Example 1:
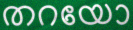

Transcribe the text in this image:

തറയോ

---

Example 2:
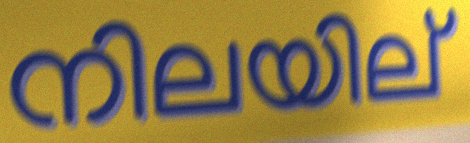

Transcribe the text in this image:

നിലയില്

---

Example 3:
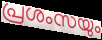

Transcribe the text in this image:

പ്രശംസയും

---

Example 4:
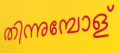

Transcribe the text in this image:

തിന്നുമ്പോള്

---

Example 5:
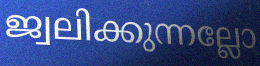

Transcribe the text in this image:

ജ്വലിക്കുന്നല്ലോ